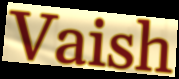
Vaish